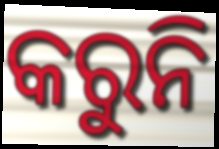
କରୁନି